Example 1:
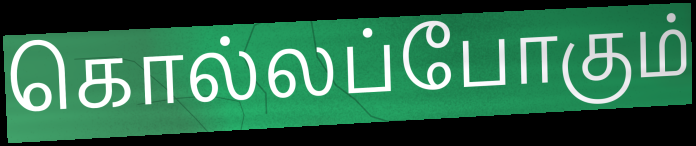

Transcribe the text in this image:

கொல்லப்போகும்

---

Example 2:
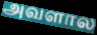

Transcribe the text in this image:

அவளால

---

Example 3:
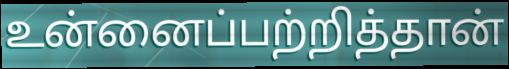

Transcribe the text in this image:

உன்னைப்பற்றித்தான்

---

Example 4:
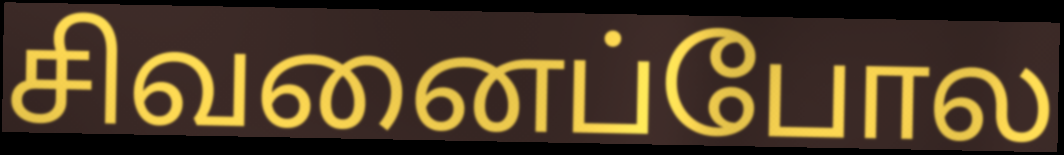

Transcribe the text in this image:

சிவனைப்போல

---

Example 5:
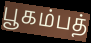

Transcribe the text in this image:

பூகம்பத்